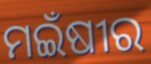
ମଇଁଷୀର